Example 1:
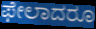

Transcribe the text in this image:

ಫೇಲಾದರೂ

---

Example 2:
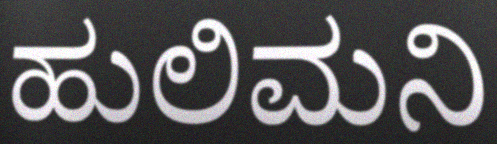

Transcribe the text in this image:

ಹುಲಿಮನಿ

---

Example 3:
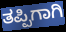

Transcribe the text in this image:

ತಪ್ಪಿಗಾಗಿ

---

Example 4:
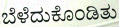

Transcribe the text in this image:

ಬೆಳೆದುಕೊಂಡಿತು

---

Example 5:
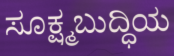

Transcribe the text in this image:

ಸೂಕ್ಷ್ಮಬುದ್ಧಿಯ